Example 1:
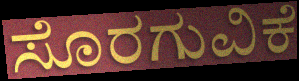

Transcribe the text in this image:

ಸೊರಗುವಿಕೆ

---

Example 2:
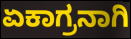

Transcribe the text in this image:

ಏಕಾಗ್ರನಾಗಿ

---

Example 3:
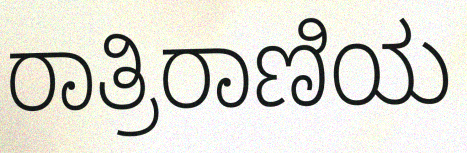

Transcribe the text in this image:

ರಾತ್ರಿರಾಣಿಯ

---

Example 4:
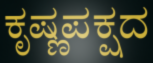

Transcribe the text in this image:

ಕೃಷ್ಣಪಕ್ಷದ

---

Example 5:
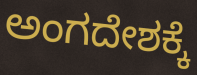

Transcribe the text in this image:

ಅಂಗದೇಶಕ್ಕೆ